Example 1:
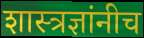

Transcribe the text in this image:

शास्त्रज्ञांनीच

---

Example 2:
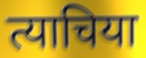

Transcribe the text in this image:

त्याचिया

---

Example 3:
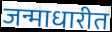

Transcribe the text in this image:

जन्माधारीत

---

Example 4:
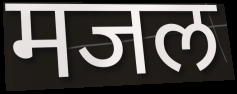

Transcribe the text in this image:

मजल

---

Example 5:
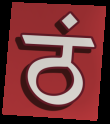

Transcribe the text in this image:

ठं